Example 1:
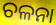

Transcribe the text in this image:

ଚଳନା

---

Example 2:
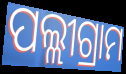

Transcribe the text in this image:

ପଲ୍ଲୀଗ୍ରାମ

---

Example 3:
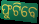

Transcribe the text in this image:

ଫୁଟିବେ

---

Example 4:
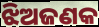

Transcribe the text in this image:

ଝିଅଜଣକ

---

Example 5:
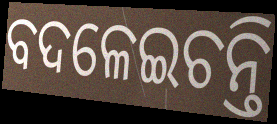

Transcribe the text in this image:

ବଦଳେଇଚନ୍ତି